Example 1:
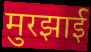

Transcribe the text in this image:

मुरझाई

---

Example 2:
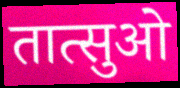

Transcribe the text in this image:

तात्सुओ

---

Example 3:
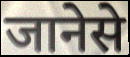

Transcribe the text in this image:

जानेसे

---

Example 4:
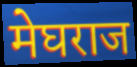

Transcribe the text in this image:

मेघराज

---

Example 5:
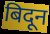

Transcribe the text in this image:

बिदून